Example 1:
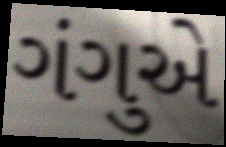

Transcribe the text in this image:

ગંગુએ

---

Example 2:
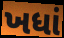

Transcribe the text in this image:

ખધાં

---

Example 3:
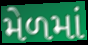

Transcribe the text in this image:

મેળમાં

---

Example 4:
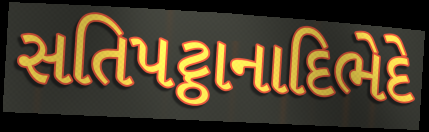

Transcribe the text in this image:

સતિપટ્ઠાનાદિભેદે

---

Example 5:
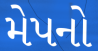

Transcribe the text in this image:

મેપનો